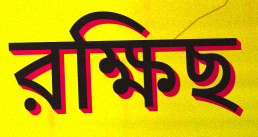
রক্ষিছ